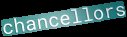
chancellors